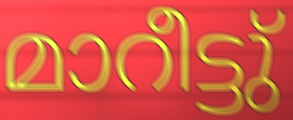
മാറീട്ടു്